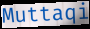
Muttaqi